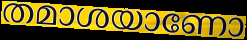
തമാശയാണോ